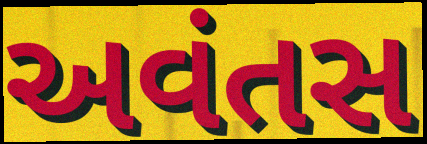
અવંતસ